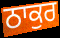
ਠਾਕੁਰ